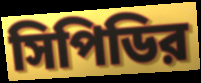
সিপিডির